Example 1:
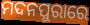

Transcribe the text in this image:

ମଦନପୁରାରେ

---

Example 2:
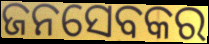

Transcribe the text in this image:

ଜନସେବକର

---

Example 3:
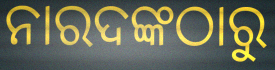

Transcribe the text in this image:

ନାରଦଙ୍କଠାରୁ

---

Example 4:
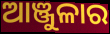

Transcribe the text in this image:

ଆଞ୍ଜୁଳାର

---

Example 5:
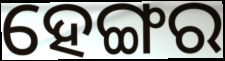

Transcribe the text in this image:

ହେଙ୍ଗର